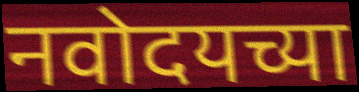
नवोदयच्या